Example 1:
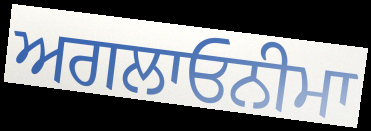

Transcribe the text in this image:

ਅਗਲਾਓਨੀਮਾ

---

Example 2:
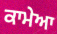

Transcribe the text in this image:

ਕਾਮੇਆ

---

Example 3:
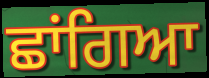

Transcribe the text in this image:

ਛਾਂਗਿਆ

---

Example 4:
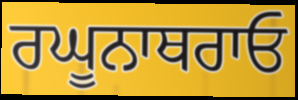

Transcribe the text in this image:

ਰਘੂਨਾਥਰਾਓ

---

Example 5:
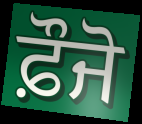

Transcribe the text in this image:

ਫ਼ੌਜੋ